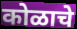
कोळाचे